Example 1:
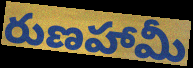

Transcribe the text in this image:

రుణహామీ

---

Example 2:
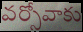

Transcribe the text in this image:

వర్సోవాకు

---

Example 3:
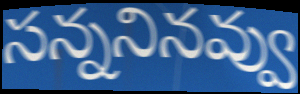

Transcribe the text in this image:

సన్ననినవ్వు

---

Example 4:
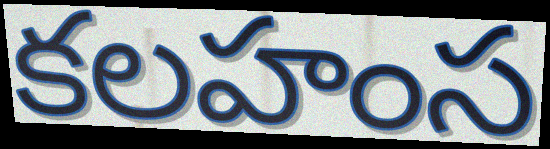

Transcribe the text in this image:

కలహంస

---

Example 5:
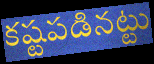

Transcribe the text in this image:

కష్టపడినట్టు